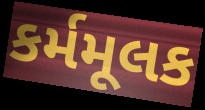
કર્મમૂલક